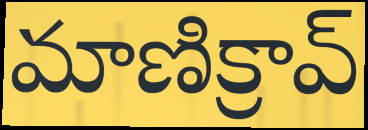
మాణిక్రావ్